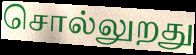
சொல்லுறது